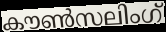
കൗൺസലിംഗ്